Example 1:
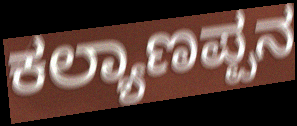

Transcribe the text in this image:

ಕಲ್ಯಾಣಪ್ಪನ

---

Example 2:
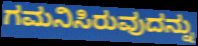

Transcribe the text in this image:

ಗಮನಿಸಿರುವುದನ್ನು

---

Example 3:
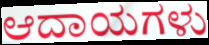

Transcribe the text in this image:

ಆದಾಯಗಳು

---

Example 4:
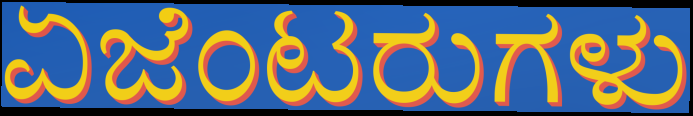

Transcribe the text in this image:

ಏಜೆಂಟರುಗಳು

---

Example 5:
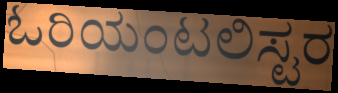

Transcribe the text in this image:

ಓರಿಯಂಟಲಿಸ್ಟರ